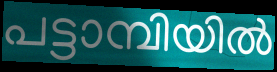
പട്ടാമ്പിയിൽ